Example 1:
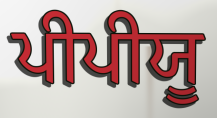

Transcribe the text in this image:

ਪੀਪੀਯੂ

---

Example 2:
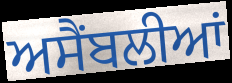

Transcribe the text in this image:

ਅਸੈਂਬਲੀਆਂ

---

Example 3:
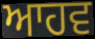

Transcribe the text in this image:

ਆਹਵ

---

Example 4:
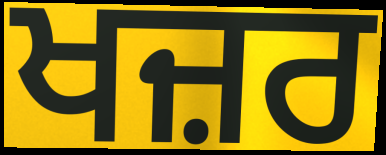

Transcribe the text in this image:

ਖਜ਼ਰ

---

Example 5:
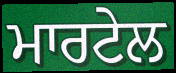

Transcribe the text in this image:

ਮਾਰਟੇਲ